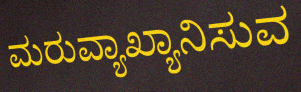
ಮರುವ್ಯಾಖ್ಯಾನಿಸುವ